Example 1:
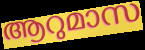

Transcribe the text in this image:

ആറുമാസ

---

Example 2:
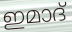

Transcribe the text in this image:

ഇമാദ്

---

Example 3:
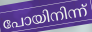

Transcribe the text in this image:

പോയിനിന്ന്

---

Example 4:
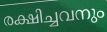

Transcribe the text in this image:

രക്ഷിച്ചവനും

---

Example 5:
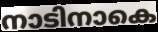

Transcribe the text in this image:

നാടിനാകെ